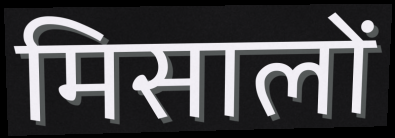
मिसालों